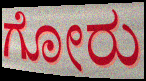
ಗೋರು